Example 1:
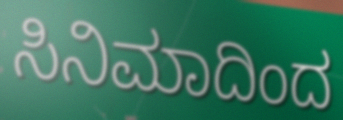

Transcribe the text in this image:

ಸಿನಿಮಾದಿಂದ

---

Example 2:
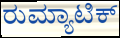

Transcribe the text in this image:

ರುಮ್ಯಾಟಿಕ್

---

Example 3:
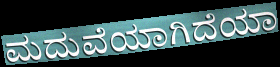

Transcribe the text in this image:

ಮದುವೆಯಾಗಿದೆಯಾ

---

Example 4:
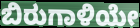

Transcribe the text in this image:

ಬಿರುಗಾಳಿಯೇ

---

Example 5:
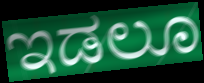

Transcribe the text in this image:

ಇಡಲೂ